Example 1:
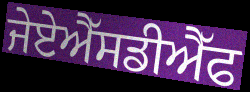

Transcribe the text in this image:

ਜੇਏਐੱਸਡੀਐੱਫ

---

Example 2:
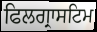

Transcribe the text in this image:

ਫਿਲਗ੍ਰਾਸਟਿਮ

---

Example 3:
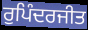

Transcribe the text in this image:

ਰੁਪਿੰਦਰਜੀਤ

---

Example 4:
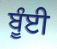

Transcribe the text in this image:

ਬੂੰਈ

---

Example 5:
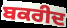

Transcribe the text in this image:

ਬਕਰੀਦ